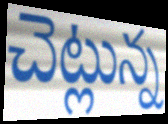
చెట్లున్న